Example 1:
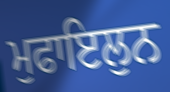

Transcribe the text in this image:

ਮੁਫਾਇਲੁਨ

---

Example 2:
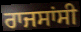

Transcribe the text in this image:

ਰਾਜਸਾਂਸੀ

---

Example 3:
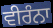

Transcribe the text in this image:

ਵੀਰੰਨਾ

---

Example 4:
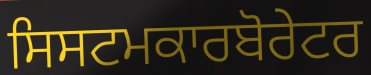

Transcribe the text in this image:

ਸਿਸਟਮਕਾਰਬੋਰੇਟਰ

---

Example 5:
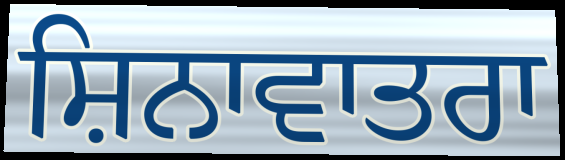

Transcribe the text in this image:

ਸ਼ਿਨਾਵਾਤਰਾ